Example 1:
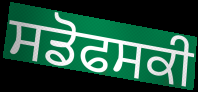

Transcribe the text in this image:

ਸਡੋਫਸਕੀ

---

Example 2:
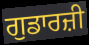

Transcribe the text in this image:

ਗੁਡਾਰਜ਼ੀ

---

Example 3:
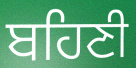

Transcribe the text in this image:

ਬਹਿਣੀ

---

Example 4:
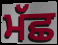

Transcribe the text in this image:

ਮੱਛ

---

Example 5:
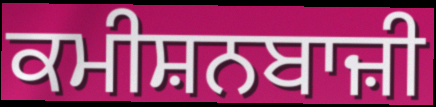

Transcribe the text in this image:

ਕਮੀਸ਼ਨਬਾਜ਼ੀ